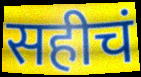
सहीचं